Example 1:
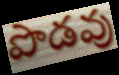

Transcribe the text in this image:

పొడవు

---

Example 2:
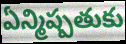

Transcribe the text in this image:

ఏన్మిష్పతుకు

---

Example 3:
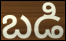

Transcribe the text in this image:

బడి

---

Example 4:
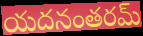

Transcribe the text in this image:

యదనంతరమ్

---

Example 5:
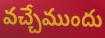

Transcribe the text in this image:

వచ్చేముందు